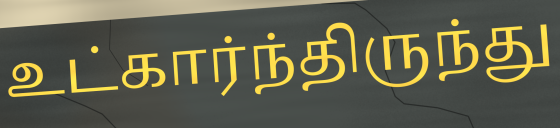
உட்கார்ந்திருந்து